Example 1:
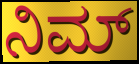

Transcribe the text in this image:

ನಿಮ್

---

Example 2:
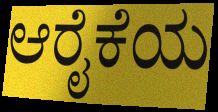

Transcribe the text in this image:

ಆರೈಕೆಯ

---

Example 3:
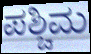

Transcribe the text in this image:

ಪಶ್ಚಿಮ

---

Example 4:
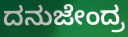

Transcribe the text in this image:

ದನುಜೇಂದ್ರ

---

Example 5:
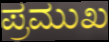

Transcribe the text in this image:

ಪ್ರಮುಖ